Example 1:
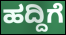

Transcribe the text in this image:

ಹದ್ದಿಗೆ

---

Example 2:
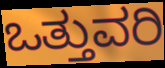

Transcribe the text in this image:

ಒತ್ತುವರಿ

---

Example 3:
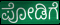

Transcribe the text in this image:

ಪೋಡಿಗೆ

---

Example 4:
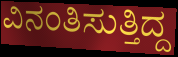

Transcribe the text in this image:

ವಿನಂತಿಸುತ್ತಿದ್ದ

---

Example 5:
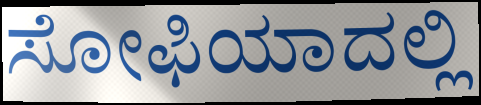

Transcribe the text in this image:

ಸೋಫಿಯಾದಲ್ಲಿ